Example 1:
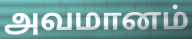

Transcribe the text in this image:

அவமானம்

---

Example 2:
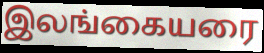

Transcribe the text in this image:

இலங்கையரை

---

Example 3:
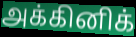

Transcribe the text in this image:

அக்கினிக்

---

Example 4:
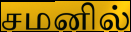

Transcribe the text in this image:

சமனில்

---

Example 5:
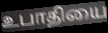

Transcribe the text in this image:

உபாதியை